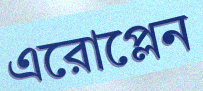
এরোপ্লেন